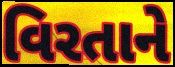
વિરતાને